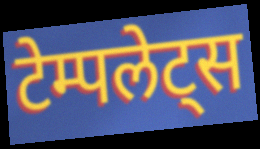
टेम्पलेट्स